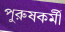
পুরুষকর্মী